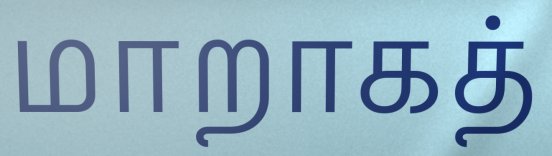
மாறாகத்